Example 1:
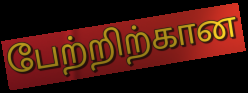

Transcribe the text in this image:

பேற்றிற்கான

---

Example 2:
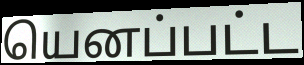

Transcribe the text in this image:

யெனப்பட்ட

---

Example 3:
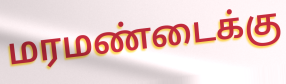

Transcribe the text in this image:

மரமண்டைக்கு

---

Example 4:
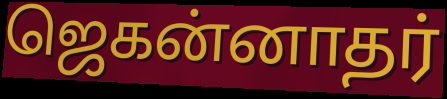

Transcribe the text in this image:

ஜெகன்னாதர்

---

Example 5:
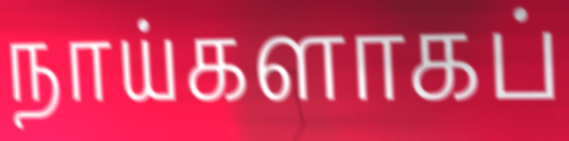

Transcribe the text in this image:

நாய்களாகப்